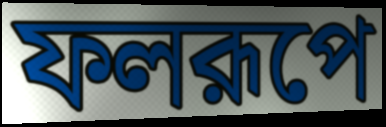
ফলরূপে